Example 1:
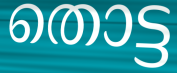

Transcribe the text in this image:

തൊട്ട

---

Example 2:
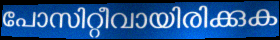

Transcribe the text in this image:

പോസിറ്റീവായിരിക്കുക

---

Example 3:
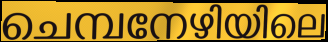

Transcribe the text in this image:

ചെമ്പനേഴിയിലെ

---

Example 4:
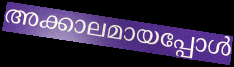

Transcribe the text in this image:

അക്കാലമായപ്പോൾ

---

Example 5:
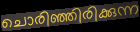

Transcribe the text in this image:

ചൊരിഞ്ഞിരിക്കുന്ന